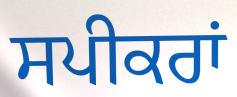
ਸਪੀਕਰਾਂ